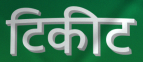
टिकीट